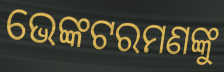
ଭେଙ୍କଟରମଣଙ୍କୁ